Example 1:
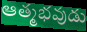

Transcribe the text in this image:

ఆత్మభవుడు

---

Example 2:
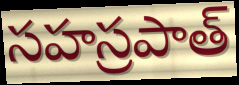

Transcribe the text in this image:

సహస్రపాత్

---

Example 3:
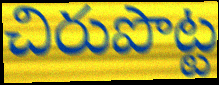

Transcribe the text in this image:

చిరుపొట్ట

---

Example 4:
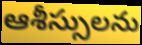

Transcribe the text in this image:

ఆశీస్సులను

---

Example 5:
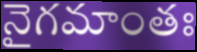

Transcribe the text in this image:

నైగమాంతః